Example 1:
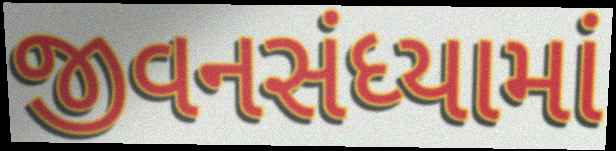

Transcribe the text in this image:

જીવનસંધ્યામાં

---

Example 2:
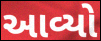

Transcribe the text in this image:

આવ્યો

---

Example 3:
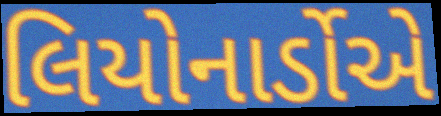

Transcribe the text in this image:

લિયોનાર્ડોએ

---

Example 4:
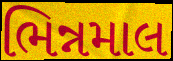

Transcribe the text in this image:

ભિન્નમાલ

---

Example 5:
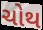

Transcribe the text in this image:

ચોથ